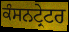
ਕੰਸਨਟ੍ਰੇਟਰ